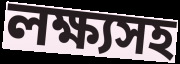
লক্ষ্যসহ